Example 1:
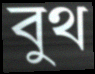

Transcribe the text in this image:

বুথ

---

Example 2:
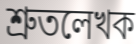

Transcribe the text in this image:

শ্রুতলেখক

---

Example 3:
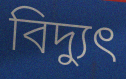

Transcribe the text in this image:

বিদ্যুৎ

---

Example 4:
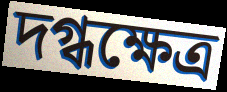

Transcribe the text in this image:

দগ্ধক্ষেত্র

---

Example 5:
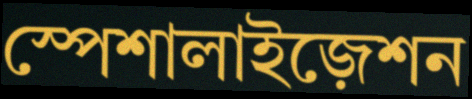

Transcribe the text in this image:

স্পেশালাইজ়েশন